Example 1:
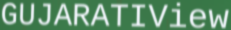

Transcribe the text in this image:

GUJARATIView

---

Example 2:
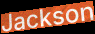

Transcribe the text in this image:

Jackson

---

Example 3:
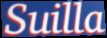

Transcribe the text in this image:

Suilla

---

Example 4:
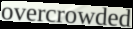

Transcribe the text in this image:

overcrowded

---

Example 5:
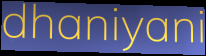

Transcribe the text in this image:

dhaniyani